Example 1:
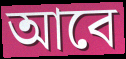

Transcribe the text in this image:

আবে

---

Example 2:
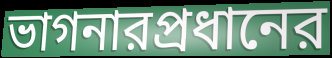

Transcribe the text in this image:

ভাগনারপ্রধানের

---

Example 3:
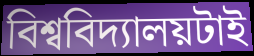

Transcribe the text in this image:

বিশ্ববিদ্যালয়টাই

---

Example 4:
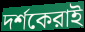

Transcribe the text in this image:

দর্শকেরাই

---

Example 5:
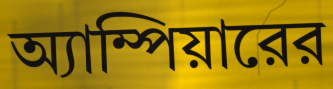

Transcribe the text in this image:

অ্যাম্পিয়ারের